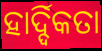
ହାର୍ଦ୍ଦିକତା